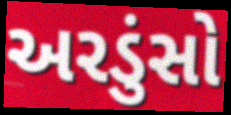
અરડુંસો